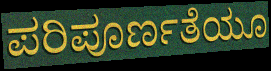
ಪರಿಪೂರ್ಣತೆಯೂ